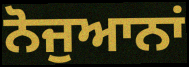
ਨੋਜੁਆਨਾਂ